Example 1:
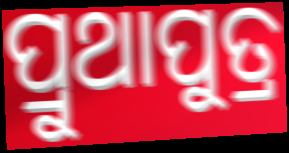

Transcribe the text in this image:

ପ୍ରୁଥାପୁତ୍ର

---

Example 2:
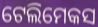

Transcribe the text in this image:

ଟେଲିମେକସ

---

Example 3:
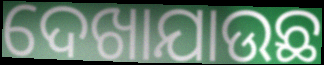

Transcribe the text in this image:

ଦେଖାଯାଉଛ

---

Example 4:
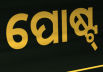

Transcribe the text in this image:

ପୋଷ୍ଟ୍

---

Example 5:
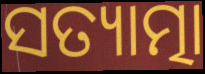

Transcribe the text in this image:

ସତ୍ୟାତ୍ମା